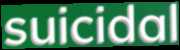
suicidal